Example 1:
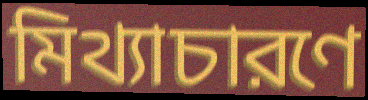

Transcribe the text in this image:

মিথ্যাচারণে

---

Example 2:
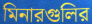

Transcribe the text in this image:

মিনারগুলির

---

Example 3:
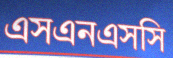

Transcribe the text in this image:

এসএনএসসি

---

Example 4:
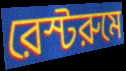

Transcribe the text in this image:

রেস্টরুমে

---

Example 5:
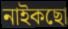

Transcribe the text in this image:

নাইকছো